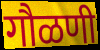
गौळणी